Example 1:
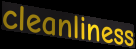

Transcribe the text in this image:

cleanliness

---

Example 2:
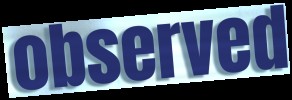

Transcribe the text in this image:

observed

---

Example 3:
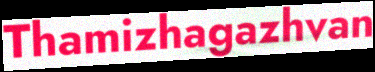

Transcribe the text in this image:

Thamizhagazhvan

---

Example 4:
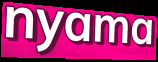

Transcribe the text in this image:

nyama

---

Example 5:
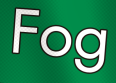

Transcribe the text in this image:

Fog